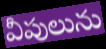
వీపులును